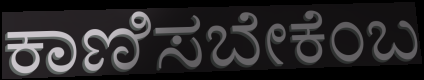
ಕಾಣಿಸಬೇಕೆಂಬ